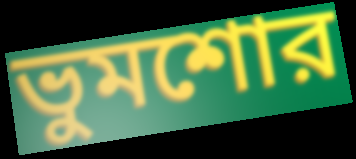
ভুমশোর